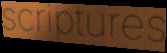
scriptures